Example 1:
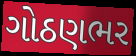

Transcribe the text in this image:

ગોઠણભર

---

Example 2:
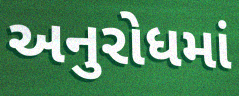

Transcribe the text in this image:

અનુરોધમાં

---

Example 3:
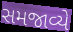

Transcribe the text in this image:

સમજાવ્યે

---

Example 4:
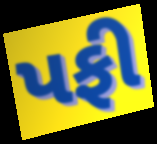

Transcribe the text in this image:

પફી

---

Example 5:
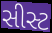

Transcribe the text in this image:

સીસ્ટ